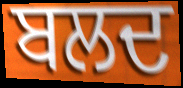
ਬਲਦ